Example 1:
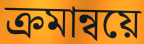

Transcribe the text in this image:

ক্রমান্বয়ে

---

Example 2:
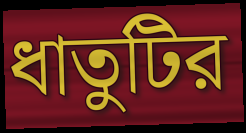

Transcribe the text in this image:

ধাতুটির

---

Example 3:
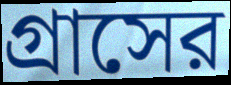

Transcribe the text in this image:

গ্রাসের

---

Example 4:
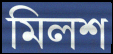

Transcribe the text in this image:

মিলশ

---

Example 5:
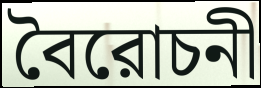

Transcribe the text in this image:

বৈরোচনী